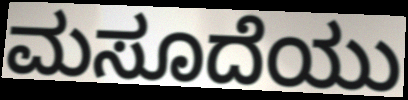
ಮಸೂದೆಯು